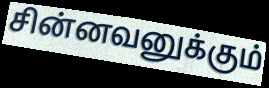
சின்னவனுக்கும்